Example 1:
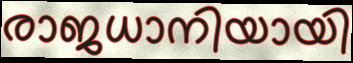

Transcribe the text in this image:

രാജധാനിയായി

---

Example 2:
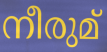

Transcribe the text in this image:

നീരുമ്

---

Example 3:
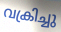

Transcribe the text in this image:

വക്രിച്ചു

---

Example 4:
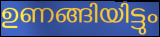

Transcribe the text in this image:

ഉണങ്ങിയിട്ടും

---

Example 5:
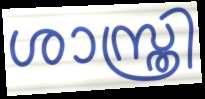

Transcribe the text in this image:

ശാസ്ത്രി